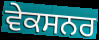
ਵੇਕਸਨਰ